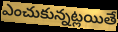
ఎంచుకున్నట్లయితే